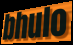
bhulo